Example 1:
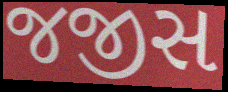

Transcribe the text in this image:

જજીસ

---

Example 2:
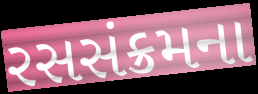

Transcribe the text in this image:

રસસંક્રમના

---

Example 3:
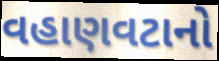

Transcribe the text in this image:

વહાણવટાનો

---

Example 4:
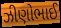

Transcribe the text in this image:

ઝીણોભાઈ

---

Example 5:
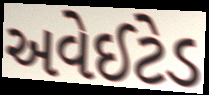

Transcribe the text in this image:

અવેઈટેડ